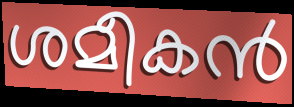
ശമീകൻ